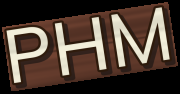
PHM